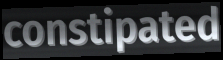
constipated